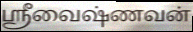
ஸ்ரீவைஷ்ணவன்